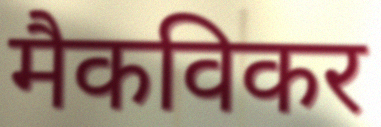
मैकविकर